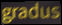
gradus